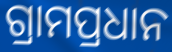
ଗ୍ରାମପ୍ରଧାନ